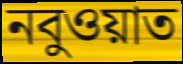
নবুওয়াত